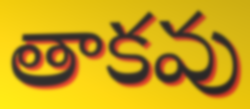
తాకవు